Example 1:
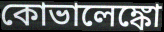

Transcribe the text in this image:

কোভালেঙ্কো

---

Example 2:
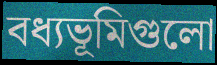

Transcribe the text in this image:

বধ্যভূমিগুলো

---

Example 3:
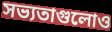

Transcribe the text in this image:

সভ্যতাগুলোও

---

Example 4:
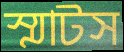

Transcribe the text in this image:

স্মাটস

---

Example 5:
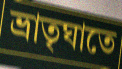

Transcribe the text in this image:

ভ্রাতৃঘাতে